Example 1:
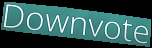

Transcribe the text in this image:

Downvote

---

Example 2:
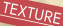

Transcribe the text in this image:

TEXTURE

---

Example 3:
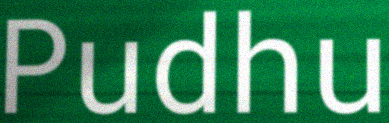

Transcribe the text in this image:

Pudhu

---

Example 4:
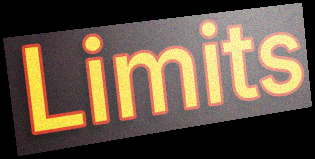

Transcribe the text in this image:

Limits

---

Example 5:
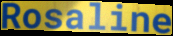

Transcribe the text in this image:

Rosaline